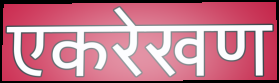
एकरेखण